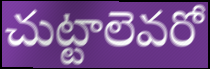
చుట్టాలెవరో